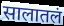
सालातलं